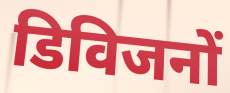
डिविजनों